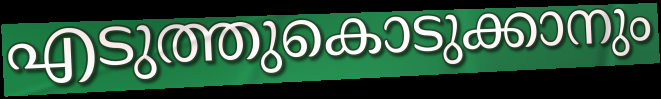
എടുത്തുകൊടുക്കാനും